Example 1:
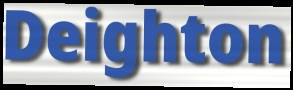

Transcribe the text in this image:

Deighton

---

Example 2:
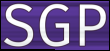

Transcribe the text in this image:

SGP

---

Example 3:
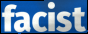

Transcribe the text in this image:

facist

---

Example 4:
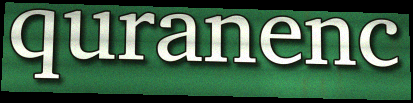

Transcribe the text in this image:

quranenc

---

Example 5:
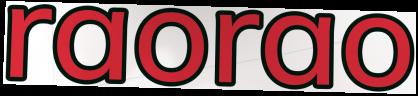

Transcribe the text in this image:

raorao